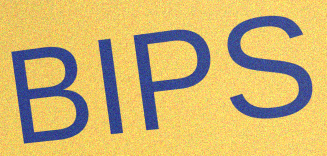
BIPS